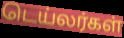
டெய்லர்கள்